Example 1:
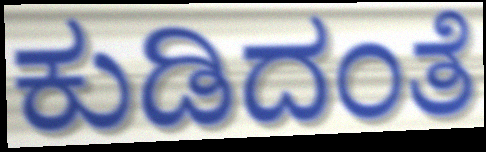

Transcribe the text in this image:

ಕುಡಿದಂತೆ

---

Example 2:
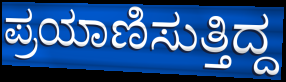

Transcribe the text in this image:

ಪ್ರಯಾಣಿಸುತ್ತಿದ್ದ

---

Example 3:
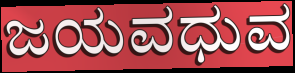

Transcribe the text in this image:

ಜಯವಧುವ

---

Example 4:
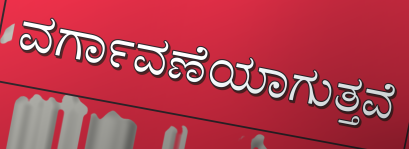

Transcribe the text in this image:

ವರ್ಗಾವಣೆಯಾಗುತ್ತವೆ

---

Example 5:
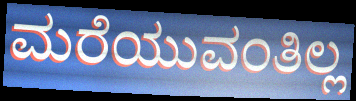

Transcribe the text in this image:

ಮರೆಯುವಂತಿಲ್ಲ